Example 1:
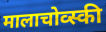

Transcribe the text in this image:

मालाचोव्स्की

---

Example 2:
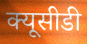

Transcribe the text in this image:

क्यूसीडी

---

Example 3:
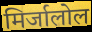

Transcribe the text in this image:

मिर्जालोल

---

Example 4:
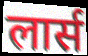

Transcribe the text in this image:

लार्स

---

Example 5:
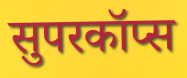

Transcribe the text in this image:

सुपरकॉप्स